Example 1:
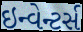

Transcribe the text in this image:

ઇન્વેન્ટર્સ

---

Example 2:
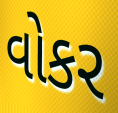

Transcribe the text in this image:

વોકર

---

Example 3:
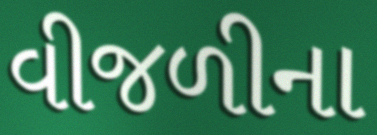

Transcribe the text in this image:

વીજળીના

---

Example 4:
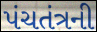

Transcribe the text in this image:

પંચતંત્રની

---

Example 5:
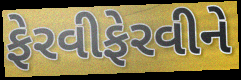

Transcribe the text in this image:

ફેરવીફેરવીને